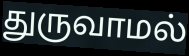
துருவாமல்